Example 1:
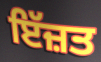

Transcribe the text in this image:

ਇੱਜ਼ਤ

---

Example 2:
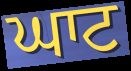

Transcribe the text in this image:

ਘਾਟ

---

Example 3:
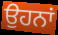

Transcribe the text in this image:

ਉਹਨਾਂ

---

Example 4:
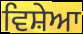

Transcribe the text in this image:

ਵਿਸ਼ੇਆ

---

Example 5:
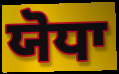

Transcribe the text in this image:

ਯੋਧਾ